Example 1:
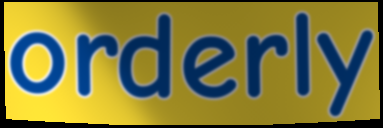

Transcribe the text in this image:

orderly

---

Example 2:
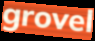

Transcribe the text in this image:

grovel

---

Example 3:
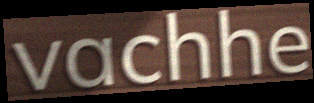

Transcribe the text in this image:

vachhe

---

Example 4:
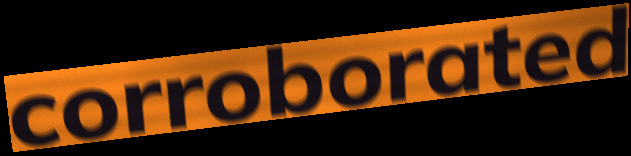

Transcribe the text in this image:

corroborated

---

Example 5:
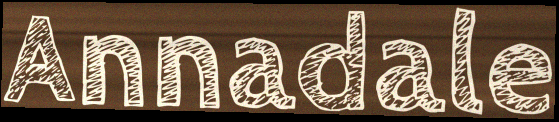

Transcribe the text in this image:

Annadale